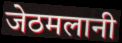
जेठमलानी